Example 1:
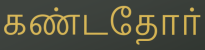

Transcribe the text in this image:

கண்டதோர்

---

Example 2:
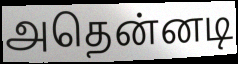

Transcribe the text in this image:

அதென்னடி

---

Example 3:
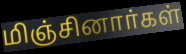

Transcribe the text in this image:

மிஞ்சினார்கள்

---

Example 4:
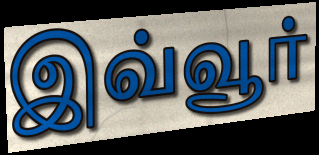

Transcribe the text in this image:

இவ்வூர்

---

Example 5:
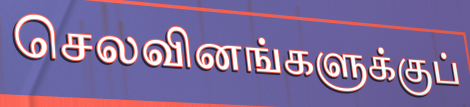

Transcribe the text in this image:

செலவினங்களுக்குப்